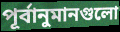
পূর্বানুমানগুলো